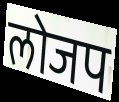
लोजप